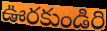
ఊరకుండిరి